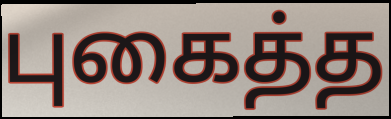
புகைத்த